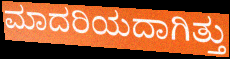
ಮಾದರಿಯದಾಗಿತ್ತು